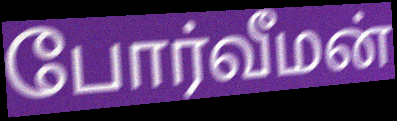
போர்வீமன்